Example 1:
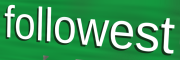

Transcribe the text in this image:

followest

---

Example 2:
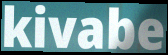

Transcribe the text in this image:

kivabe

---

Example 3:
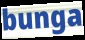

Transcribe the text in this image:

bunga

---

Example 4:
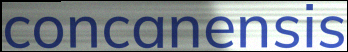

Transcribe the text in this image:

concanensis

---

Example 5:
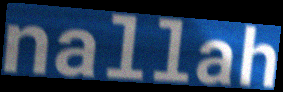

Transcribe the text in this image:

nallah